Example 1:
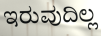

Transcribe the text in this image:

ಇರುವುದಿಲ್ಲ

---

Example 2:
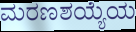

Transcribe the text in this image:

ಮರಣಶಯ್ಯೆಯ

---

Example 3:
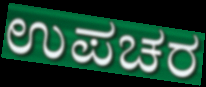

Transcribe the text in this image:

ಉಪಚರ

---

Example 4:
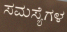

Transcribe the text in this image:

ಸಮಸ್ಯೆಗಳ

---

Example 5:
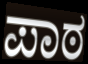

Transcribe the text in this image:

ಪಾಠ